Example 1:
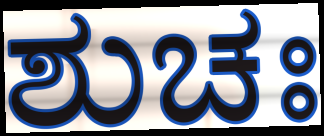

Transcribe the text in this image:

ಶುಚಃ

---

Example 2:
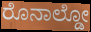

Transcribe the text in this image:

ರೊನಾಲ್ಡೋ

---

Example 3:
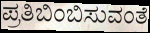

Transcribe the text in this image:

ಪ್ರತಿಬಿಂಬಿಸುವಂತೆ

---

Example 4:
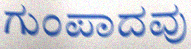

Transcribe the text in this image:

ಗುಂಪಾದವು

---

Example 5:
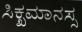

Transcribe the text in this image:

ಸಿಕ್ಖಮಾನಸ್ಸ